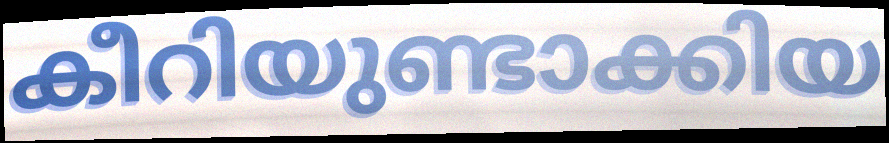
കീറിയുണ്ടാക്കിയ